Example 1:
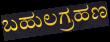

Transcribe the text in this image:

ಬಹುಲಗ್ರಹಣ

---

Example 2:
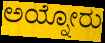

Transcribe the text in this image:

ಅಯ್ನೋರು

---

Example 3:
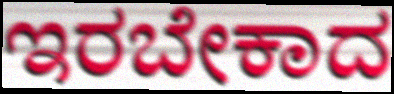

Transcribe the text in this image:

ಇರಬೇಕಾದ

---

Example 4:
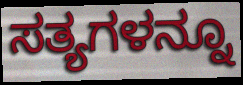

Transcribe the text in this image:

ಸತ್ಯಗಳನ್ನೂ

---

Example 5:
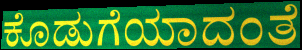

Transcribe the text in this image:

ಕೊಡುಗೆಯಾದಂತೆ